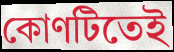
কোণটিতেই